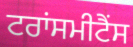
ਟਰਾਂਸਮੀਟੈਂਸ